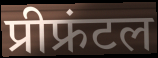
प्रीफ्रंटल